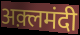
अक़्लमंदी